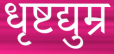
धृष्टद्युम्र